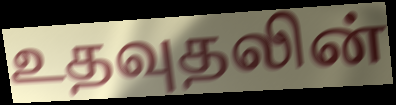
உதவுதலின்